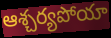
ఆశ్చర్యపోయా